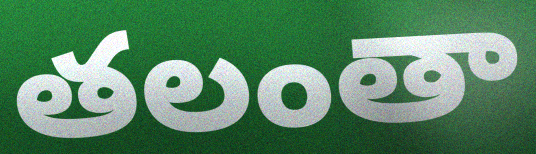
తలంతా